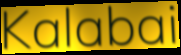
Kalabai